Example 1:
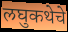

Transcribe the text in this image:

लघुकथेचे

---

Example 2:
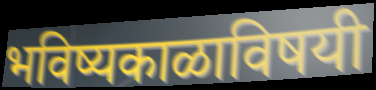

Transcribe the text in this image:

भविष्यकाळाविषयी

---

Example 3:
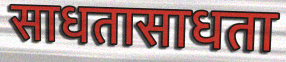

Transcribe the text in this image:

साधतासाधता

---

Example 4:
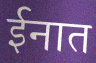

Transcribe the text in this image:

ईनात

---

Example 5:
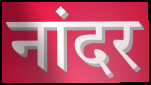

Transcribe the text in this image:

नांदर